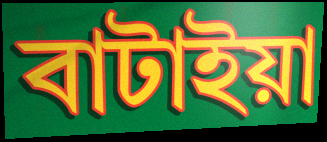
বাটাইয়া